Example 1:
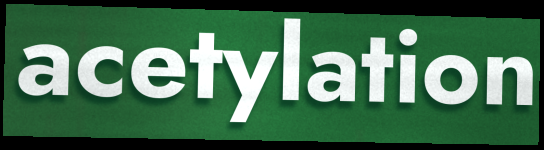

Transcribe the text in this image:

acetylation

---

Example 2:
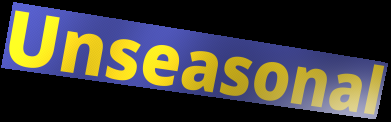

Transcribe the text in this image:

Unseasonal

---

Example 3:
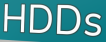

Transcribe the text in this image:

HDDs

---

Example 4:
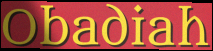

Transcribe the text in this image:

Obadiah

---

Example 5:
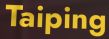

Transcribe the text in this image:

Taiping